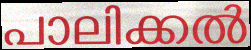
പാലിക്കൽ